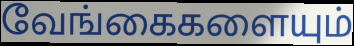
வேங்கைகளையும்